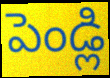
పెండ్లి